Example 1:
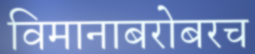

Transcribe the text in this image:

विमानाबरोबरच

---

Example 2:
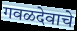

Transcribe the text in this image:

गवळदेवाचे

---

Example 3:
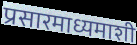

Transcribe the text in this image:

प्रसारमाध्यमाशी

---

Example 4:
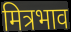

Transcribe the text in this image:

मित्रभाव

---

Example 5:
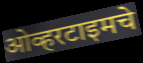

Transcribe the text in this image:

ओव्हरटाइमचे